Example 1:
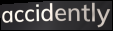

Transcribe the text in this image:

accidently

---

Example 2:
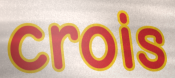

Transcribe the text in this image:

crois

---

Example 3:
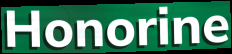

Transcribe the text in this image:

Honorine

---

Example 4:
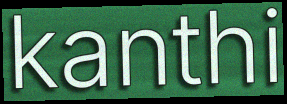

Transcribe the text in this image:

kanthi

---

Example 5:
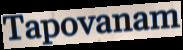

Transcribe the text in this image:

Tapovanam